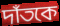
দাঁতকে